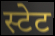
स्टेट